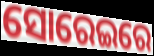
ସୋରେଇରେ